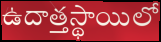
ఉదాత్తస్థాయిలో